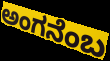
ಅಂಗನೆಂಬ